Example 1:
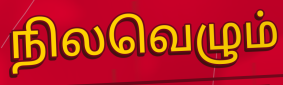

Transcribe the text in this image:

நிலவெழும்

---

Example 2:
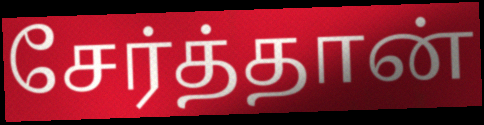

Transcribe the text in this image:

சேர்த்தான்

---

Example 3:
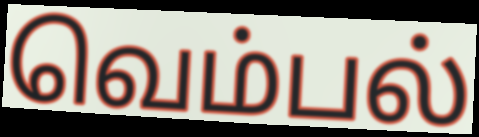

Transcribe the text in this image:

வெம்பல்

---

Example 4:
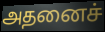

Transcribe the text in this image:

அதனைச்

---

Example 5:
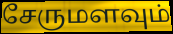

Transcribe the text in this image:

சேருமளவும்